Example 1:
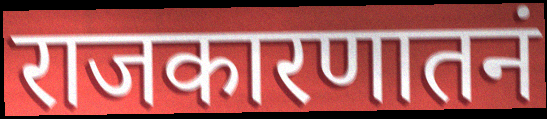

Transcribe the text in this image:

राजकारणातनं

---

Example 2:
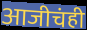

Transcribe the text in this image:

आजीचंही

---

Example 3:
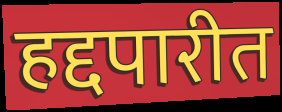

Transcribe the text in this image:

हद्दपारीत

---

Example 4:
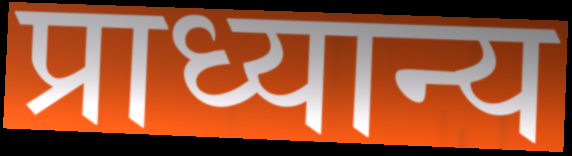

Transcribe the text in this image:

प्राध्यान्य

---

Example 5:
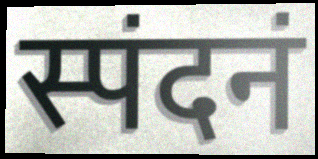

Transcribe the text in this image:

स्पंदनं